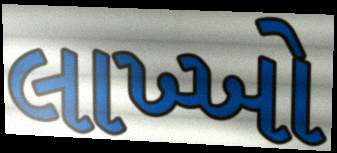
લાખ્ખો